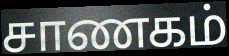
சாணகம்